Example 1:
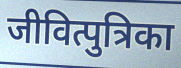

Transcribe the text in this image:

जीवित्पुत्रिका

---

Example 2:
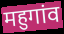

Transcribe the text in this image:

महुगांव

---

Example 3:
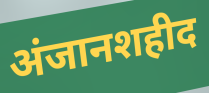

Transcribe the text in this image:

अंजानशहीद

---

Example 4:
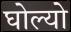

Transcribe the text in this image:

घोल्यो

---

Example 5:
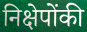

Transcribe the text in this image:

निक्षेपोंकी